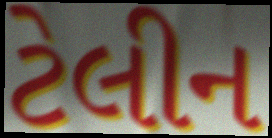
ટેલીન